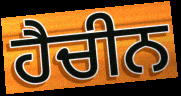
ਹੈਚੀਨ